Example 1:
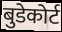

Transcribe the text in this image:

बुडेकोर्ट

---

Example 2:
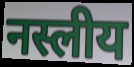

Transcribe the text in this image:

नस्लीय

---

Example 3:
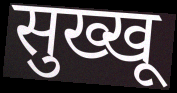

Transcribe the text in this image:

सुख्खू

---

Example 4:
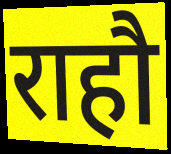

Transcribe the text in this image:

राहौ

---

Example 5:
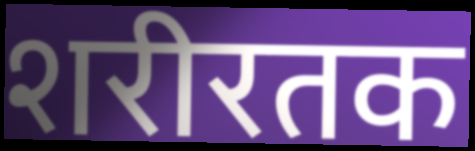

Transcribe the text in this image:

शरीरतक